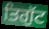
ਤਿਗੁੱਟ